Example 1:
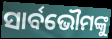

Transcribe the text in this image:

ସାର୍ବଭୌମଙ୍କୁ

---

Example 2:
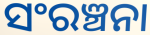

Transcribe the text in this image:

ସଂରଞ୍ଚନା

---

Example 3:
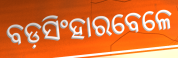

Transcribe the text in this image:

ବଡ଼ସିଂହାରବେଳେ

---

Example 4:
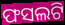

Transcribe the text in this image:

ଫସଲଟି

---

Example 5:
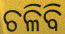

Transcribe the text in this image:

ଚଳିବି